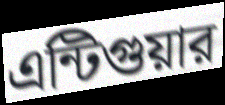
এন্টিগুয়ার